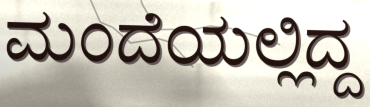
ಮಂದೆಯಲ್ಲಿದ್ದ